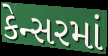
કેન્સરમાં